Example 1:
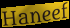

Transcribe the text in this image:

Haneef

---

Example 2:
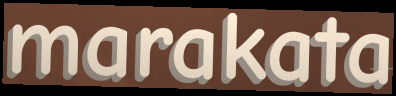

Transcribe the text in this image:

marakata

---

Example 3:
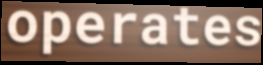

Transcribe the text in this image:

operates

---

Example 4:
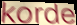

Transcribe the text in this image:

korde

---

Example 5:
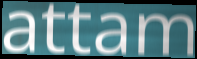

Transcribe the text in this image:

attam